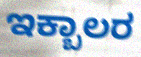
ಇಕ್ಬಾಲರ